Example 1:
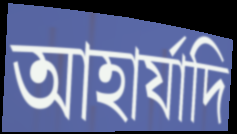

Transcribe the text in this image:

আহার্যাদি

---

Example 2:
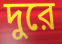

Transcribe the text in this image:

দুরে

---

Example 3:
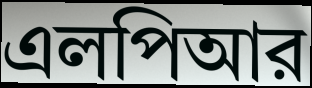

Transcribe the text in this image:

এলপিআর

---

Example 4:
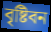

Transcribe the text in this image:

বৃষ্টিবন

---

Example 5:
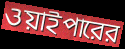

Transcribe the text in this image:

ওয়াইপারের